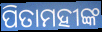
ପିତାମହୀଙ୍କ